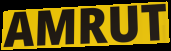
AMRUT